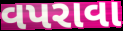
વપરાવા